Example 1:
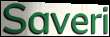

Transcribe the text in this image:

Saveri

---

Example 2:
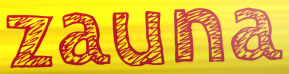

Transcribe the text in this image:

zauna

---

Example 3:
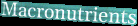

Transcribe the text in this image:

Macronutrients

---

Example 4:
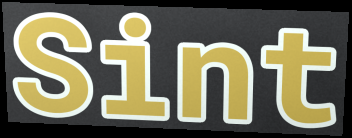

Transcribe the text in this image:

Sint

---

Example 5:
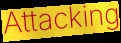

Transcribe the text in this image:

Attacking